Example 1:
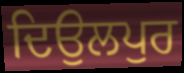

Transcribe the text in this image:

ਦਿਉਲਪੁਰ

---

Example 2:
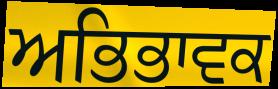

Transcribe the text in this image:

ਅਭਿਭਾਵਕ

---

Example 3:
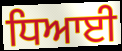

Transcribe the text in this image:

ਧਿਆਈ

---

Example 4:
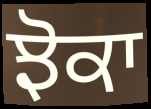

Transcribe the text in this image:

ਝੋਕਾ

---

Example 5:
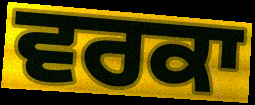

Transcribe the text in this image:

ਵਰਕਾ